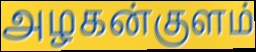
அழகன்குளம்